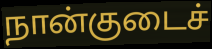
நான்குடைச்